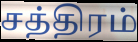
சத்திரம்